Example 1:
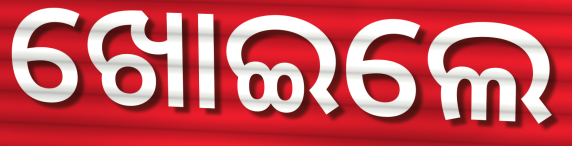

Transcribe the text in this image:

ଖୋଇଲେ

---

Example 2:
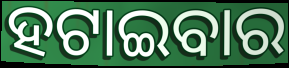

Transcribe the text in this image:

ହଟାଇବାର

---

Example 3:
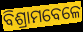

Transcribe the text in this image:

ବିଶ୍ରାମବେଳେ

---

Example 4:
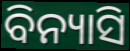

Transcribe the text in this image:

ବିନ୍ୟାସି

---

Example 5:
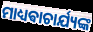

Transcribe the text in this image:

ମାଧ୍ୟଵାଚାର୍ଯ୍ୟଙ୍କ